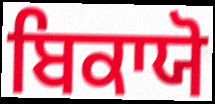
ਬਿਕਾਯੋ